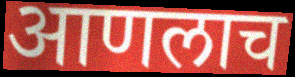
आणलाच